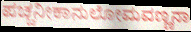
ಪಚ್ಚನೀಕಾನುಲೋಮವಣ್ಣನಾ